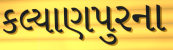
કલ્યાણપુરના